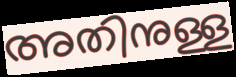
അതിനുള്ള